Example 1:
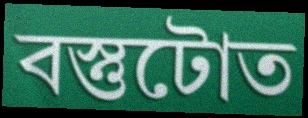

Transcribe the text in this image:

বস্তুটোত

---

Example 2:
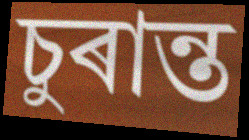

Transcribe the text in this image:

চুৰান্ত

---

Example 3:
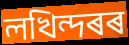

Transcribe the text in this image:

লখিন্দৰৰ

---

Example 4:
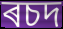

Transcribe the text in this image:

ৰচদ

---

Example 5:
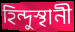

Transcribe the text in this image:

হিন্দুস্থানী